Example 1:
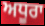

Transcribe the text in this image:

ਅਧੂਰਾ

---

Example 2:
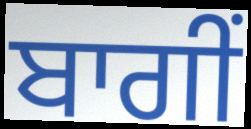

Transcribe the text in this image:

ਬਾਗੀਂ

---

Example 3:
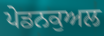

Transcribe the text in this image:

ਪੇਡਨਕੁਅਲ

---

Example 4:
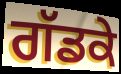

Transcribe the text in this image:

ਗੱਡਕੇ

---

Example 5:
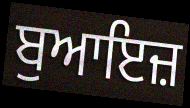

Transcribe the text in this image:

ਬੁਆਇਜ਼